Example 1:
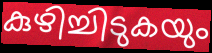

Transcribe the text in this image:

കുഴിച്ചിടുകയും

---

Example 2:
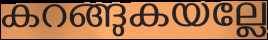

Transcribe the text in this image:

കറങ്ങുകയല്ലേ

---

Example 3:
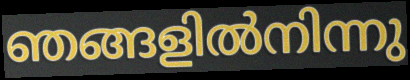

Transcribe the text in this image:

ഞങ്ങളിൽനിന്നു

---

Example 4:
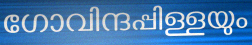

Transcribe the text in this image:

ഗോവിന്ദപ്പിള്ളയും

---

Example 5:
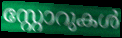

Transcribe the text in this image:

സ്റ്റോറുകൾ